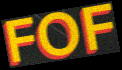
FOF